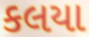
કલયા